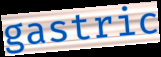
gastric